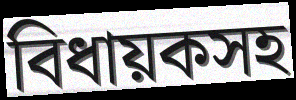
বিধায়কসহ